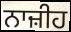
ਨਾਜ਼ੀਹ